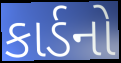
કાર્ડનો